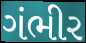
ગંભીર